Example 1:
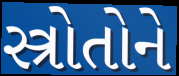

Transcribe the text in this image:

સ્ત્રોતોને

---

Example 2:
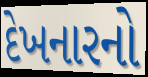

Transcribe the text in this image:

દેખનારનો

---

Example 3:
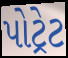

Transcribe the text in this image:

પોટ્રેટ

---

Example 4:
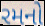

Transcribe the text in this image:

રમનો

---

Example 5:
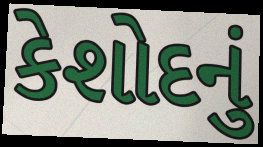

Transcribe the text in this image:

કેશોદનું